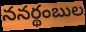
ననర్థంబుల